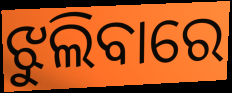
ଝୁଲିବାରେ